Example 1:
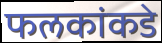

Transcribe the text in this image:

फलकांकडे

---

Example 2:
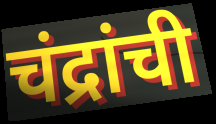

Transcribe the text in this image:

चंद्रांची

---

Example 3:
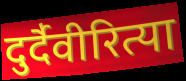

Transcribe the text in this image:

दुर्दैवीरित्या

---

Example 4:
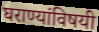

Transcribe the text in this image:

घराण्यांविषयी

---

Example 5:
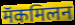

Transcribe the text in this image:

मॅकमिलन